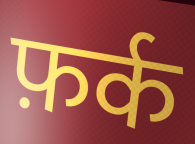
फ़र्क